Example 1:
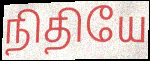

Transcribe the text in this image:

நிதியே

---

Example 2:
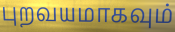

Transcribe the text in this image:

புறவயமாகவும்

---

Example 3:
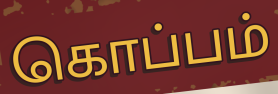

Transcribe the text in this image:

கொப்பம்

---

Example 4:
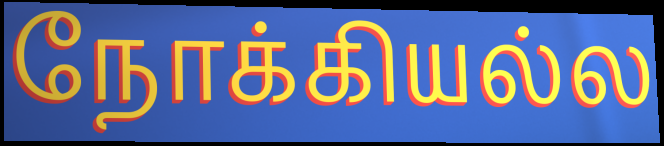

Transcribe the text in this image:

நோக்கியல்ல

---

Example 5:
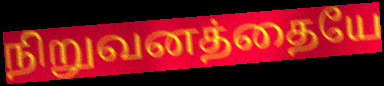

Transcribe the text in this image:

நிறுவனத்தையே